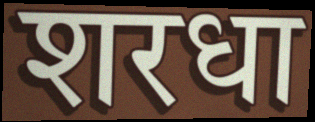
शरधा